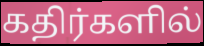
கதிர்களில்